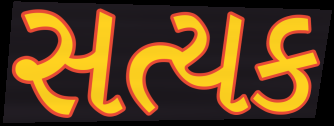
સત્યક